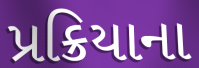
પ્રક્રિયાના